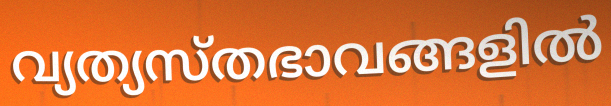
വ്യത്യസ്തഭാവങ്ങളിൽ